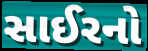
સાઈરનો